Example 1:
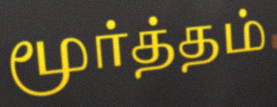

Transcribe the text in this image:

மூர்த்தம்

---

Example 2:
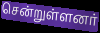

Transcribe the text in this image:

சென்றுள்ளனர்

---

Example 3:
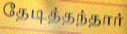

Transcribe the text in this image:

தேடித்தந்தார்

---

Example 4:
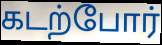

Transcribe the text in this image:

கடற்போர்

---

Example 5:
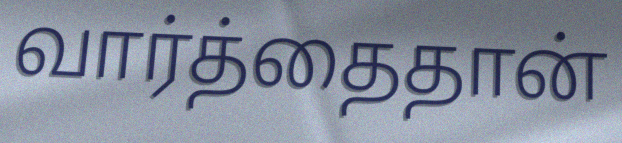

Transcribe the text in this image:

வார்த்தைதான்